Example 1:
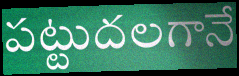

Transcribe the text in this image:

పట్టుదలగానే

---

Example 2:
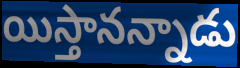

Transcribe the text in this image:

యిస్తానన్నాడు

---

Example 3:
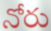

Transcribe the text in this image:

నోరు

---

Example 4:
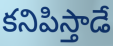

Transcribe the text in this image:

కనిపిస్తాడే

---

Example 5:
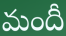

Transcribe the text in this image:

మందీ